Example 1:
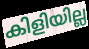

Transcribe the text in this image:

കിളിയില്ല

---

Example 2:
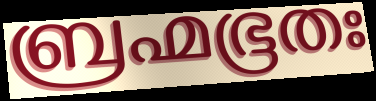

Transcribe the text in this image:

ബ്രഹ്മഭൂതഃ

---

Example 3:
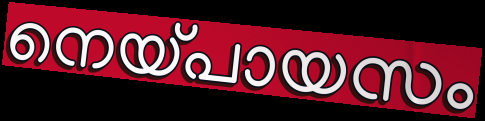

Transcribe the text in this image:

നെയ്പായസം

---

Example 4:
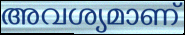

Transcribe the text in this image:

അവശ്യമാണ്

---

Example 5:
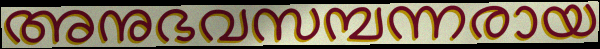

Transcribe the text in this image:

അനുഭവസമ്പന്നരായ